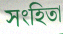
সংহিতা